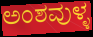
ಅಂಶವುಳ್ಳ